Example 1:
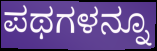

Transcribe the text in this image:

ಪಥಗಳನ್ನೂ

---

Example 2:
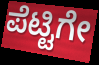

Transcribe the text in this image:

ಪೆಟ್ಟಿಗೇ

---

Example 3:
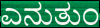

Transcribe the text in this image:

ಎನುತುಂ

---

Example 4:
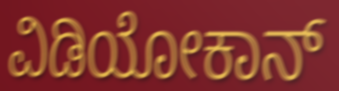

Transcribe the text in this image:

ವಿಡಿಯೋಕಾನ್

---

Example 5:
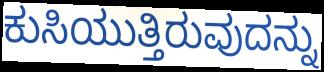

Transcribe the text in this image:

ಕುಸಿಯುತ್ತಿರುವುದನ್ನು